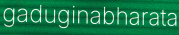
gaduginabharata